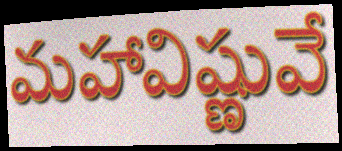
మహావిష్ణువే